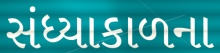
સંધ્યાકાળના